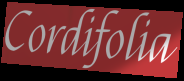
Cordifolia